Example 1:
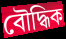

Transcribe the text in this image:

বৌদ্ধিক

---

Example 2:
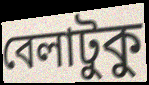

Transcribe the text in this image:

বেলাটুকু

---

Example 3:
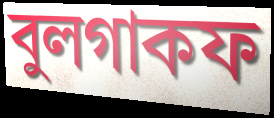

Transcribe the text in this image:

বুলগাকফ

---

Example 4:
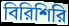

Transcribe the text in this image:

বিরিশিরি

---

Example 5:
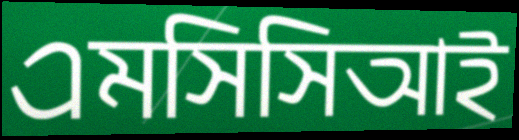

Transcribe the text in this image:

এমসিসিআই